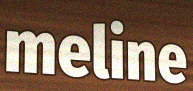
meline